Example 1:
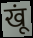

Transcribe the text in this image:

खूं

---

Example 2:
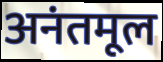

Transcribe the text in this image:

अनंतमूल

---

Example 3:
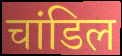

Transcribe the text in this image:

चांडिल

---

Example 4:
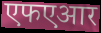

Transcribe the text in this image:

एफएआर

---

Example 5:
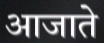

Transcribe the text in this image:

आजाते